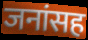
जनांसह